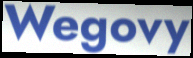
Wegovy